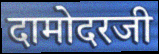
दामोदरजी